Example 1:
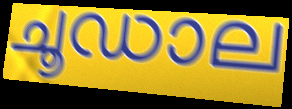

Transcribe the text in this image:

ചൂഡാല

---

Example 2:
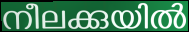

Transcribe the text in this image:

നീലക്കുയിൽ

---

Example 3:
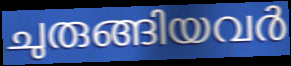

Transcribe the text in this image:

ചുരുങ്ങിയവർ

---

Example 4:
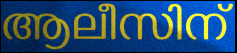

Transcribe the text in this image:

ആലീസിന്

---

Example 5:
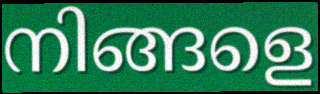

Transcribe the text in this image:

നിങ്ങളെ